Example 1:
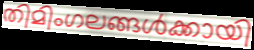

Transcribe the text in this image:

തിമിംഗലങ്ങൾക്കായി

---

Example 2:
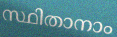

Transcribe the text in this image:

സ്ഥിതാനാം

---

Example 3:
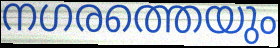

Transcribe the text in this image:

നഗരത്തെയും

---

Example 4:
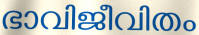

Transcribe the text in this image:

ഭാവിജീവിതം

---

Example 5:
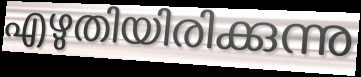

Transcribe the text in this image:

എഴുതിയിരിക്കുന്നു